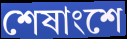
শেষাংশে